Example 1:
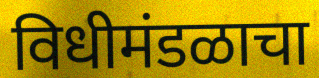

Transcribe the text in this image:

विधीमंडळाचा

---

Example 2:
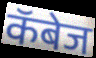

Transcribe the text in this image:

कॅबेज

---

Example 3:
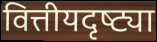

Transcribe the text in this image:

वित्तीयदृष्ट्या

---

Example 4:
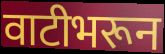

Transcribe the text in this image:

वाटीभरून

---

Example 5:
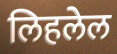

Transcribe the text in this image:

लिहलेल